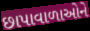
છાપાવાળાઓને